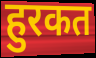
हुरकत